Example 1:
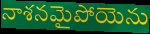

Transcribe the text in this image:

నాశనమైపోయెను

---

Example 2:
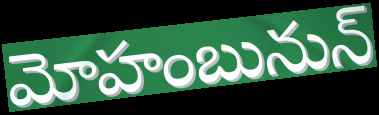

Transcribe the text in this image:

మోహంబునున్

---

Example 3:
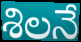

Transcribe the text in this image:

శిలనే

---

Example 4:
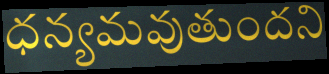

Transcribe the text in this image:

ధన్యమవుతుందని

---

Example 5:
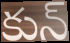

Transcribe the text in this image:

కున్